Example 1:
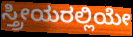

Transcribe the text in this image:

ಸ್ತ್ರೀಯರಲ್ಲಿಯೇ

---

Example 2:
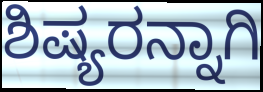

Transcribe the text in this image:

ಶಿಷ್ಯರನ್ನಾಗಿ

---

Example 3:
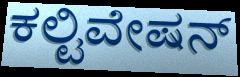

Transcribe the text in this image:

ಕಲ್ಟಿವೇಷನ್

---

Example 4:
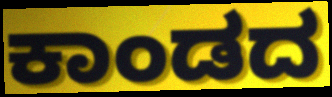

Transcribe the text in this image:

ಕಾಂಡದ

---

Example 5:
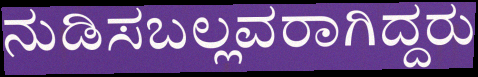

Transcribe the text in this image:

ನುಡಿಸಬಲ್ಲವರಾಗಿದ್ದರು